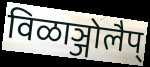
विळाञ्जोलैप्